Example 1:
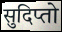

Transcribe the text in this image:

सुदिप्तो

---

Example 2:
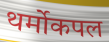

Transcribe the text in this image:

थर्मोकपल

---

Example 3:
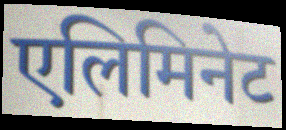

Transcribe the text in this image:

एलिमिनेट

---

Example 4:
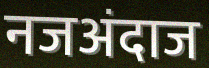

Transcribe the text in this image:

नजअंदाज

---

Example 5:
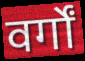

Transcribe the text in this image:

वर्गों